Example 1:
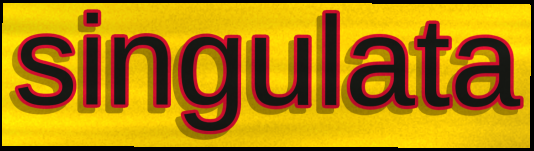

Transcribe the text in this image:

singulata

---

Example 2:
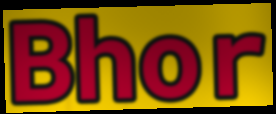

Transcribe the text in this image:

Bhor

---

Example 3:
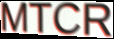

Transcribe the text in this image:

MTCR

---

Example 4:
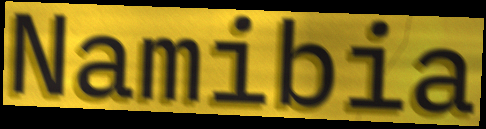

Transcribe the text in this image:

Namibia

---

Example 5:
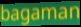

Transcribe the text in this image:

bagaman